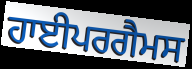
ਹਾਈਪਰਗੈਮਸ